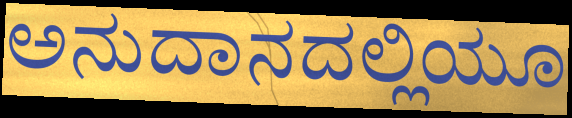
ಅನುದಾನದಲ್ಲಿಯೂ